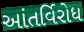
આંતર્વિરોધ